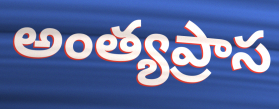
అంత్యప్రాస